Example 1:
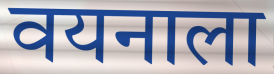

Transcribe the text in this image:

वयनाला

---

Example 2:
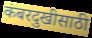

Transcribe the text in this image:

कंबरदुखीसाठी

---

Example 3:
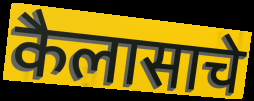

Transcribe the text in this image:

कैलासाचे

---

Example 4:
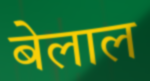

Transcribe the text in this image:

बेलाल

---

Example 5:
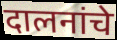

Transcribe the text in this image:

दालनांचे